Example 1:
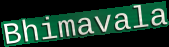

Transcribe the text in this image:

Bhimavala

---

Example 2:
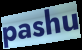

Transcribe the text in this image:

pashu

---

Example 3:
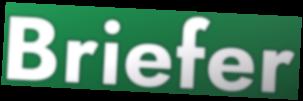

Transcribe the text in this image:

Briefer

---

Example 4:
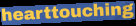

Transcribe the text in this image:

hearttouching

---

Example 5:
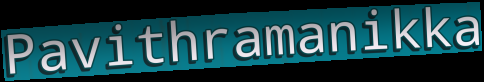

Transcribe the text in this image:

Pavithramanikka